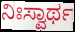
ನಿಃಸ್ವಾರ್ಥ